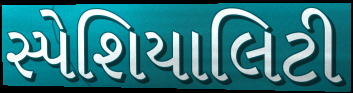
સ્પેશિયાલિટી